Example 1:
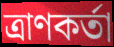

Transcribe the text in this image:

ত্ৰাণকৰ্তা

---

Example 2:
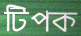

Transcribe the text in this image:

টিপক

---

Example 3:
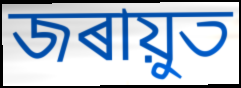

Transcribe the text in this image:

জৰায়ুত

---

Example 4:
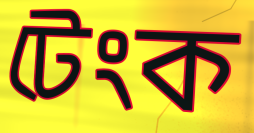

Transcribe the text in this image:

টেংক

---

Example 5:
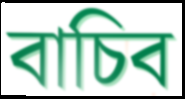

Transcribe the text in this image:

বাচিব